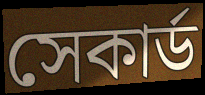
সেকার্ড